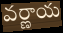
వర్ణాయ